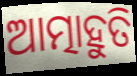
ଆତ୍ମାହୁତି